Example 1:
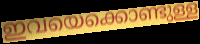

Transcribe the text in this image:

ഇവയെക്കൊണ്ടുള്ള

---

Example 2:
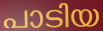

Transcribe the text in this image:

പാടിയ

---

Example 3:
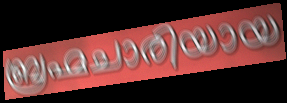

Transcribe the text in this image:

ബ്രഹ്മചാരിയായ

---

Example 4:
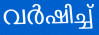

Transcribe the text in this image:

വർഷിച്ച്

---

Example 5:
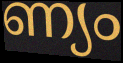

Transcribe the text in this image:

ണ്യം